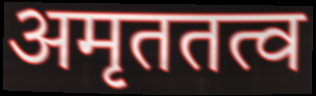
अमृततत्व